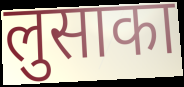
लुसाका